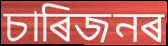
চাৰিজনৰ